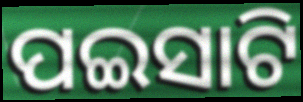
ପଇସାଟି